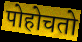
पोहोचतो